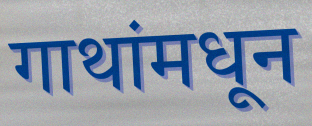
गाथांमधून